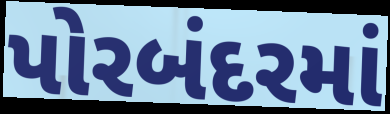
પોરબંદરમાં